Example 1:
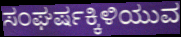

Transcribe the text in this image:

ಸಂಘರ್ಷಕ್ಕಿಳಿಯುವ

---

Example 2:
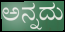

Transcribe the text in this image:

ಅನ್ನದು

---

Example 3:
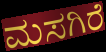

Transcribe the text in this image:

ಮಸಗಿರೆ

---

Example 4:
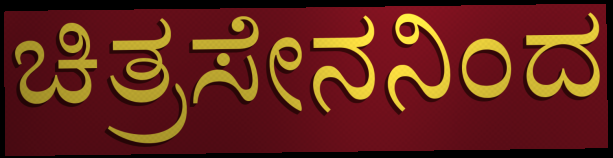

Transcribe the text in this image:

ಚಿತ್ರಸೇನನಿಂದ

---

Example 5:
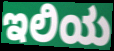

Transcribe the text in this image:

ಇಲಿಯ